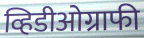
व्हिडीओग्राफी